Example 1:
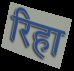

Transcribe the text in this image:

रिहा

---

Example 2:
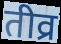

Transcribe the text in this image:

तीव्र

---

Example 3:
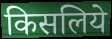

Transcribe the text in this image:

किसलिये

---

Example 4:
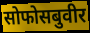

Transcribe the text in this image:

सोफोसबुवीर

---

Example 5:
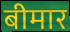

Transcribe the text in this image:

बीमार